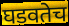
घडवतेच